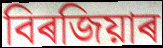
বিৰজিয়াৰ